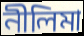
নীলিমা